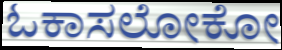
ಓಕಾಸಲೋಕೋ